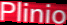
Plinio